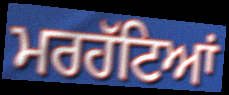
ਮਰਹੱਟਿਆਂ